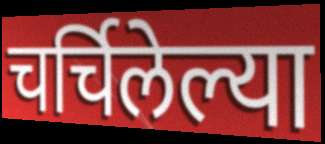
चर्चिलेल्या